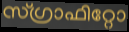
സ്ഗ്രാഫിറ്റോ